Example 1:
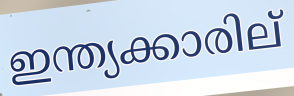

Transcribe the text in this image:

ഇന്ത്യക്കാരില്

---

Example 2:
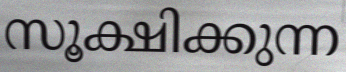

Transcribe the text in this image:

സൂക്ഷിക്കുന്ന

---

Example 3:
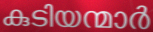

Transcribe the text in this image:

കുടിയന്മാർ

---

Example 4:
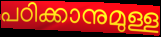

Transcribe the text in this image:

പഠിക്കാനുമുള്ള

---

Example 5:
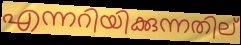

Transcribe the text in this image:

എന്നറിയിക്കുന്നതില്